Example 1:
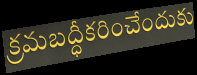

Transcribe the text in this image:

క్రమబద్ధీకరించేందుకు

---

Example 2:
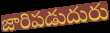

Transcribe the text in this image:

జారిపడుదురు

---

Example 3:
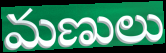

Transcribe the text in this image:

మణులు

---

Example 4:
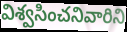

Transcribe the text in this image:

విశ్వసించనివారిని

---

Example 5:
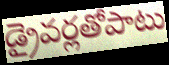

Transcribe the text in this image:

డ్రైవర్లతోపాటు